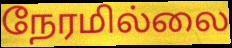
நேரமில்லை